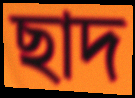
ছাদ